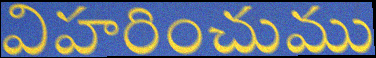
విహరించుము